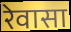
रेवासा